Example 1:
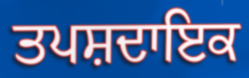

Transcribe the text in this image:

ਤਪਸ਼ਦਾਇਕ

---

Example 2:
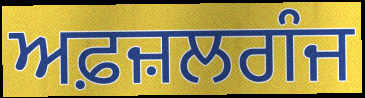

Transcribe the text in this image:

ਅਫ਼ਜ਼ਲਗੰਜ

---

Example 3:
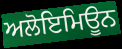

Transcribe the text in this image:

ਅਲੋਇਮਿਊਨ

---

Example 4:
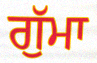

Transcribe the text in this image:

ਗੁੱਮਾ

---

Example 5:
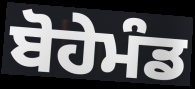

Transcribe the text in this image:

ਬੋਹੇਮੰਡ